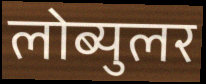
लोब्युलर